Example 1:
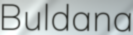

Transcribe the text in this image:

Buldana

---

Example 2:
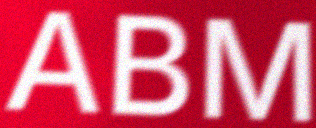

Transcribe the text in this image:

ABM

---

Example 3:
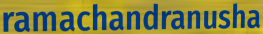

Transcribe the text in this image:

ramachandranusha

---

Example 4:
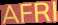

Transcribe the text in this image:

AFRI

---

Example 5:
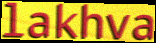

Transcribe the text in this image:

lakhva